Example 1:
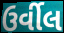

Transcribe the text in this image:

ઉર્વીલ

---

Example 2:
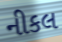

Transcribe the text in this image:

નીકલ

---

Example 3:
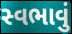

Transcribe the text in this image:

સ્વભાવું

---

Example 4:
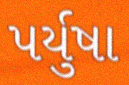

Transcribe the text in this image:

પર્યુષા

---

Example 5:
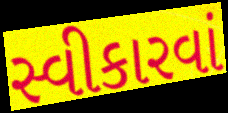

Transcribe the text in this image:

સ્વીકારવાં